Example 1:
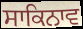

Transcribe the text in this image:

ਸਾਕਿਨਾਵ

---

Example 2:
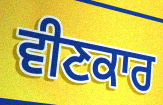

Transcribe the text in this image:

ਵੀਣਕਾਰ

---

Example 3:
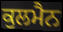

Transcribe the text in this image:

ਕੁਲਮੈਨ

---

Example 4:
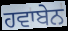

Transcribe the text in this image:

ਹਵਾਬੇਨ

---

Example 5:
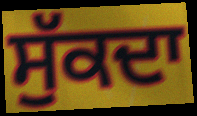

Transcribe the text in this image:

ਸੁੱਕਦਾ